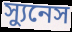
স্যুনেস